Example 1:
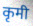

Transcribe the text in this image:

कृमी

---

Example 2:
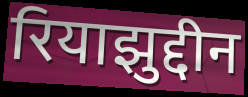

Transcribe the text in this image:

रियाझुद्दीन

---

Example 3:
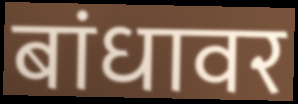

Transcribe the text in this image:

बांधावर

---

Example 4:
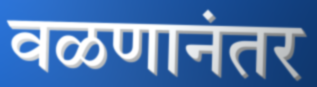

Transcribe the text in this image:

वळणानंतर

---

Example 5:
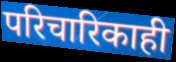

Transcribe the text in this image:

परिचारिकाही